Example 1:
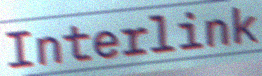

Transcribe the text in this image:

Interlink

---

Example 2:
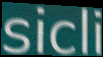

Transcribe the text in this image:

sicli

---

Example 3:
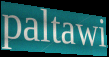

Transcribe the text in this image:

paltawi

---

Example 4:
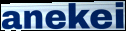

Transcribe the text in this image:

anekei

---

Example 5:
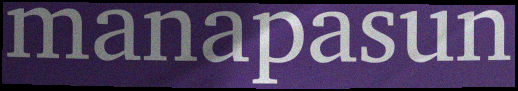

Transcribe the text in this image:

manapasun